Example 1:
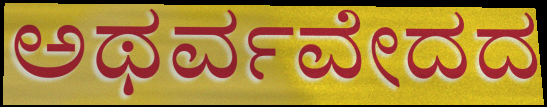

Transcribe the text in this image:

ಅಥರ್ವವೇದದ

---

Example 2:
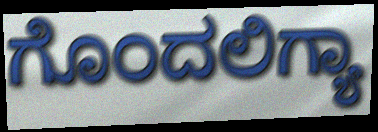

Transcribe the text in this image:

ಗೊಂದಲಿಗ್ಯಾ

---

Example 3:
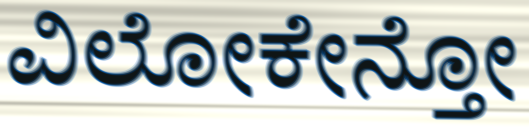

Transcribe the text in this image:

ವಿಲೋಕೇನ್ತೋ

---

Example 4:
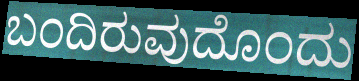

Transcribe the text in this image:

ಬಂದಿರುವುದೊಂದು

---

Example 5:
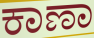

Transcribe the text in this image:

ಕಾಣಾ